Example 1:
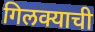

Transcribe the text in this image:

गिलक्याची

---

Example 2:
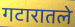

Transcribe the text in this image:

गटारातले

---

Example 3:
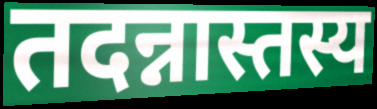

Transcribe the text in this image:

तदन्नास्तस्य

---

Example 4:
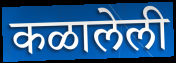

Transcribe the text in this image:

कळालेली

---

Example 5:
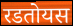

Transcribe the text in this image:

रडतोयस